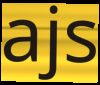
ajs